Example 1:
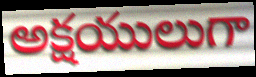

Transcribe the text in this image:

అక్షయులుగా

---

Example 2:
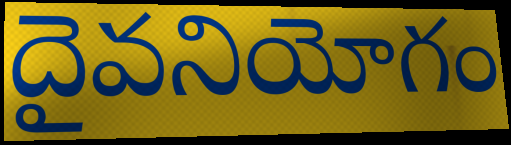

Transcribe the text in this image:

దైవనియోగం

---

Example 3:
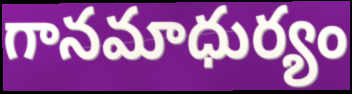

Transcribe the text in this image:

గానమాధుర్యం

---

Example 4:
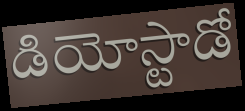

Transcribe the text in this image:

డియోస్టాడో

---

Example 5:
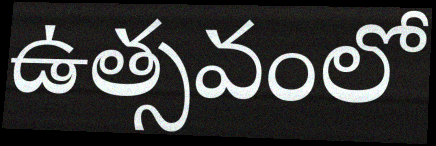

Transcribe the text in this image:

ఉత్సవంలో